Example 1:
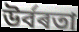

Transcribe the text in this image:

উৰ্বৰতা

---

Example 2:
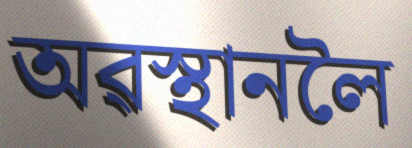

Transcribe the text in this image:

অৱস্থানলৈ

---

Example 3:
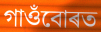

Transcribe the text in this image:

গাওঁবোৰত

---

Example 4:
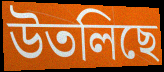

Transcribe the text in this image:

উতলিছে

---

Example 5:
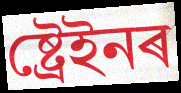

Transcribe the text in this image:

ষ্ট্ৰেইনৰ